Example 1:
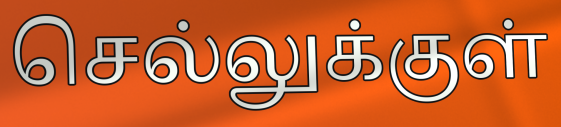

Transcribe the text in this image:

செல்லுக்குள்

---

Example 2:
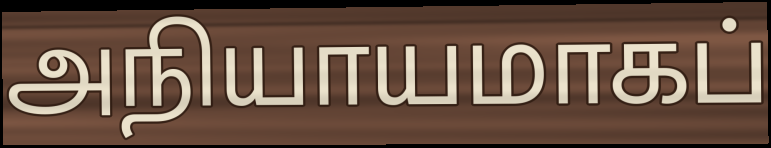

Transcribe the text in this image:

அநியாயமாகப்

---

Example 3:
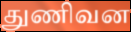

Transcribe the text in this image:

துணிவன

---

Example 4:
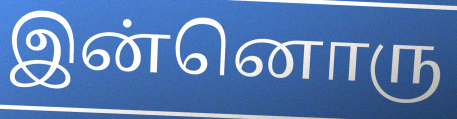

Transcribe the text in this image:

இன்னொரு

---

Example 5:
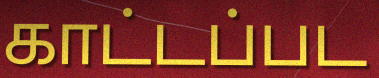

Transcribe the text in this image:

காட்டப்பட